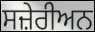
ਸਜ਼ੇਰੀਅਨ